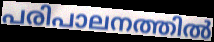
പരിപാലനത്തിൽ